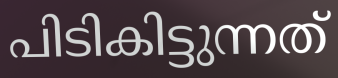
പിടികിട്ടുന്നത്